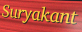
Suryakant